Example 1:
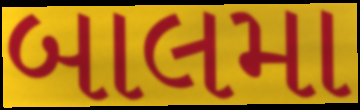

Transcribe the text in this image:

બાલમા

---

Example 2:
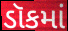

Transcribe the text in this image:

ડૉકમાં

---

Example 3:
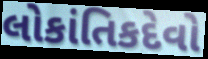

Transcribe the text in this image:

લોકાંતિકદેવો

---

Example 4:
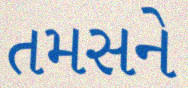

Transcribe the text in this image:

તમસને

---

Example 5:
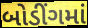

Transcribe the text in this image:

બોડીંગમાં